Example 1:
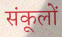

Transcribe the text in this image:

संकूलों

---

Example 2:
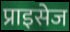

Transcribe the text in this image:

प्राइसेज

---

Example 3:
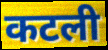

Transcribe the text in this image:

कटली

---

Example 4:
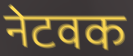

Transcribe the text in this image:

नेटवक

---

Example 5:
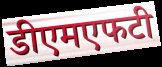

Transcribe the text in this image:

डीएमएफटी